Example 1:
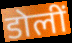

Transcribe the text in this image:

डोलीं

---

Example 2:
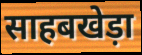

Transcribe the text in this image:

साहबखेड़ा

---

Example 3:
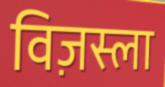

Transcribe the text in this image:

विज़स्ला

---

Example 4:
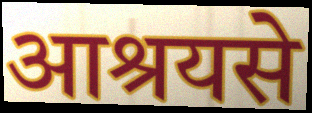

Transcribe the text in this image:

आश्रयसे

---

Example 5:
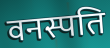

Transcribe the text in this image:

वनस्पति